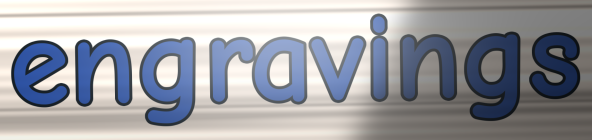
engravings